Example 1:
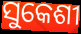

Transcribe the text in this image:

ସୁକେଶୀ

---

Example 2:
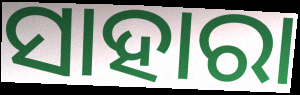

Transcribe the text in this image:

ସାହାରା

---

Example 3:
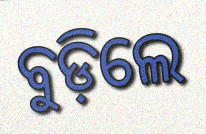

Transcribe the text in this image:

ବୁଡ଼ିଲେ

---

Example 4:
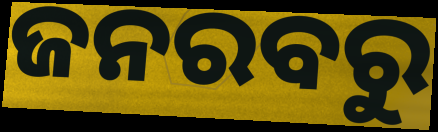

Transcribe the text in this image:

ଜନରବରୁ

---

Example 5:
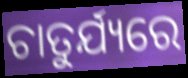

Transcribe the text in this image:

ଚାତୁର୍ଯ୍ୟରେ